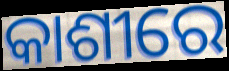
କାଶୀରେ